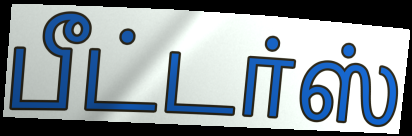
பீட்டர்ஸ்